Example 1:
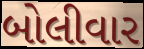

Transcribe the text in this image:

બોલીવાર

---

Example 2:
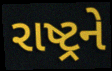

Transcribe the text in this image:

રાષ્ટ્રને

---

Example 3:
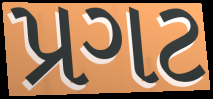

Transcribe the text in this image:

પ્રગટ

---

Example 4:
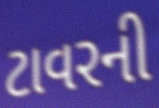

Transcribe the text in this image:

ટાવરની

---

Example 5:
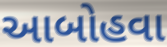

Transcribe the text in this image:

આબોહવા